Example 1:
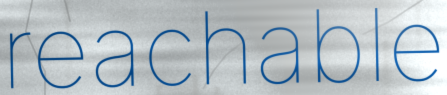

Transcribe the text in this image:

reachable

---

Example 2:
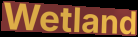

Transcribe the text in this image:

Wetland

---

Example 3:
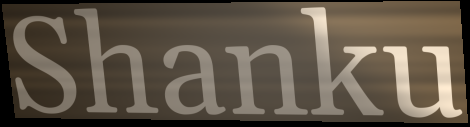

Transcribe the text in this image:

Shanku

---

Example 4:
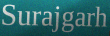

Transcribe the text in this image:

Surajgarh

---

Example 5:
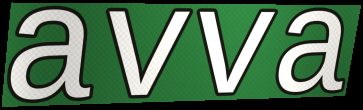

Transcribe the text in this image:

avva